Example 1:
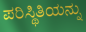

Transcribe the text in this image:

ಪರಿಸ್ಥಿತಿಯನ್ನು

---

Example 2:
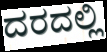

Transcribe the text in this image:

ದರದಲ್ಲಿ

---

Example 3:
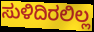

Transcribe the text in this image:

ಸುಳಿದಿರಲಿಲ್ಲ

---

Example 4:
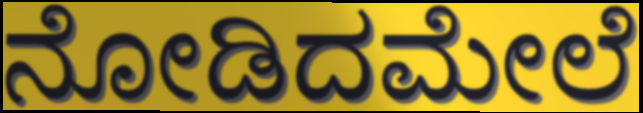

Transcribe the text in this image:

ನೋಡಿದಮೇಲೆ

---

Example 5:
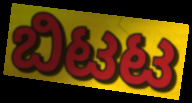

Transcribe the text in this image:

ಬಿಟಟ